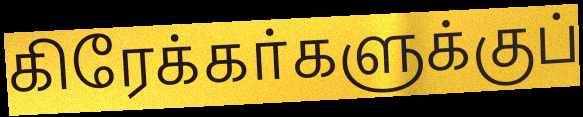
கிரேக்கர்களுக்குப்